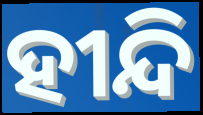
ହୀନ୍ଦି